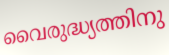
വൈരുദ്ധ്യത്തിനു